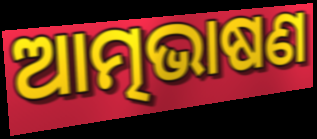
ଆତ୍ମଭାଷଣ